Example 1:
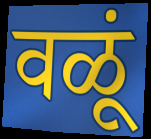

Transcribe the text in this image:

वळूं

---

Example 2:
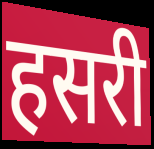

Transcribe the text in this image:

हसरी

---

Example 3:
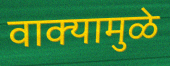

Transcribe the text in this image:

वाक्यामुळे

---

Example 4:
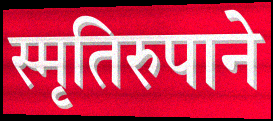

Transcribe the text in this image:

स्मृतिरुपाने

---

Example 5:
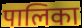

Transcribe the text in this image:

पालिका